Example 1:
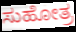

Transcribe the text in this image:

ಸುಹೋತ್ರ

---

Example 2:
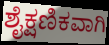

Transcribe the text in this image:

ಶೈಕ್ಷಣಿಕವಾಗಿ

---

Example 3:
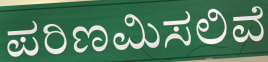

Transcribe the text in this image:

ಪರಿಣಮಿಸಲಿವೆ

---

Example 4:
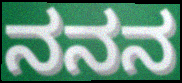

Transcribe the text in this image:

ನನನ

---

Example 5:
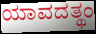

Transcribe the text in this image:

ಯಾವದತ್ಥಂ